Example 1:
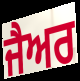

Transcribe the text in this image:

ਜੈਅਰ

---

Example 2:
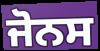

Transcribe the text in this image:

ਜੋਨਸ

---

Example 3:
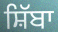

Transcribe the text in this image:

ਸ਼ਿੱਬਾ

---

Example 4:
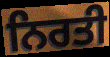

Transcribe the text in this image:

ਨਿਰਤੀ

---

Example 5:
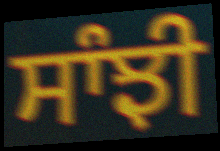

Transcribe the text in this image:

ਸਾੰਝੀ